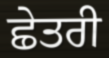
ਛੇਤਰੀ